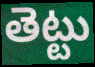
తెట్టు